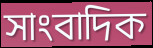
সাংবাদিক